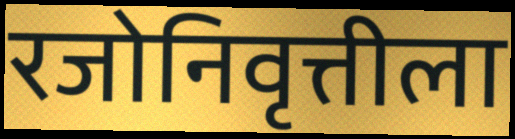
रजोनिवृत्तीला